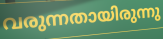
വരുന്നതായിരുന്നു